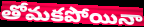
తోమకపోయినా